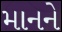
માનને